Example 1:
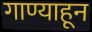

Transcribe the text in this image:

गाण्याहून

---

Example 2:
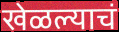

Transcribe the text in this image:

खेळल्याचं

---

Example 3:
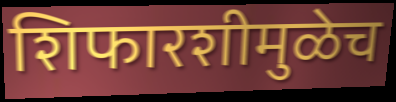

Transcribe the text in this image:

शिफारशीमुळेच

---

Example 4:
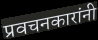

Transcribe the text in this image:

प्रवचनकारांनी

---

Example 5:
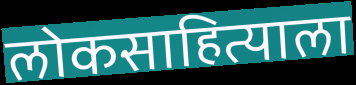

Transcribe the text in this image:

लोकसाहित्याला